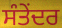
ਸੰਤੇਂਦਰ